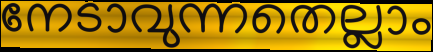
നേടാവുന്നതെല്ലാം